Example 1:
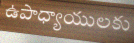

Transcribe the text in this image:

ఉపాధ్యాయులకు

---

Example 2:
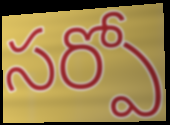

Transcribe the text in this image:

సర్పో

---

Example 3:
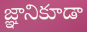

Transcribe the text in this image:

జ్ఞానికూడా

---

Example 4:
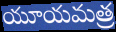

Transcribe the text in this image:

యూయమత్ర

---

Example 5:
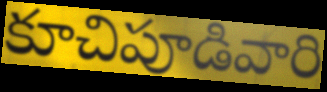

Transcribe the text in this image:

కూచిపూడివారి